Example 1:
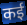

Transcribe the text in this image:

कई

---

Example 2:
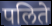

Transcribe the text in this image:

पलिते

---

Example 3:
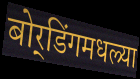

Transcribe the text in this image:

बोर्डिंगमधल्या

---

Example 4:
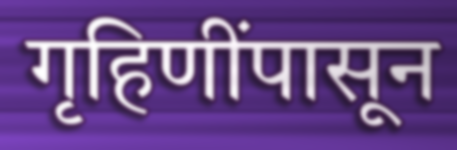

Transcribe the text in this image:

गृहिणींपासून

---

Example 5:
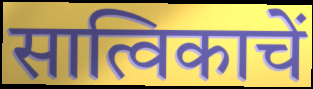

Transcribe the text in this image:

सात्विकाचें